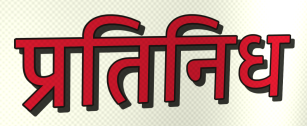
प्रतिनिध